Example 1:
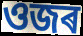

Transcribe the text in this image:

ওজৰ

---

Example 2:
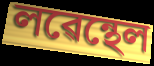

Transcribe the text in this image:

লৱেন্থেল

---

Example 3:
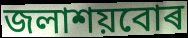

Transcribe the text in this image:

জলাশয়বোৰ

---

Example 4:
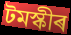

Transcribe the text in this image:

টমস্কীৰ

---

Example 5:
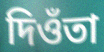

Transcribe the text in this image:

দিওঁতা